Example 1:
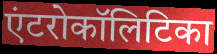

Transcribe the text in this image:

एंटरोकॉलिटिका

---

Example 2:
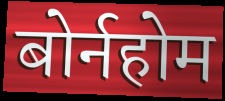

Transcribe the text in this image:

बोर्नहोम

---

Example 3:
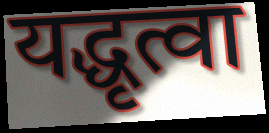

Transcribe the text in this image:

यद्धृत्वा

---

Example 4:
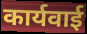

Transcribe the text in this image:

कार्यवाई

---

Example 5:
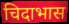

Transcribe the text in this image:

चिदाभास